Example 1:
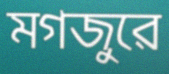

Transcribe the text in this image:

মগজুৱে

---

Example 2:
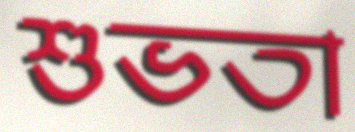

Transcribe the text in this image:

শুভতা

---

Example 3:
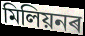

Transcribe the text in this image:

মিলিয়নৰ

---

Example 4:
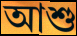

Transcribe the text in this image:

আশু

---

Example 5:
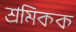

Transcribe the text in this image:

শ্ৰমিকক